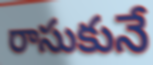
రాసుకునే